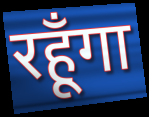
रहूँगा